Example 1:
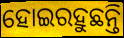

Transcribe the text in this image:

ହୋଇରହୁଛନ୍ତି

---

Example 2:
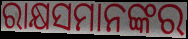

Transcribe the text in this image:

ରାକ୍ଷସମାନଙ୍କର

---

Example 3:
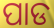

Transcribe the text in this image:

ପାଡ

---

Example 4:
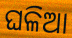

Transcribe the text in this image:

ଘଳିଆ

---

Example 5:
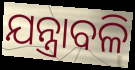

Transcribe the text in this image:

ଯନ୍ତ୍ରାବଳି